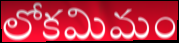
లోకమిమం